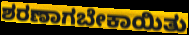
ಶರಣಾಗಬೇಕಾಯಿತು